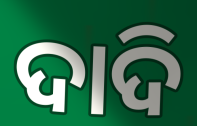
ଦାଦି